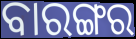
ବାରଙ୍ଗର